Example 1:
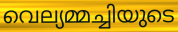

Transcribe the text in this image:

വെല്യമ്മച്ചിയുടെ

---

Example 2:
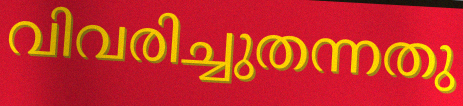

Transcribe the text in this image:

വിവരിച്ചുതന്നതു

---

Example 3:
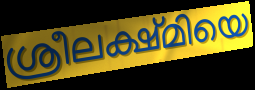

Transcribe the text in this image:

ശ്രീലക്ഷ്മിയെ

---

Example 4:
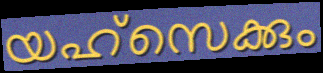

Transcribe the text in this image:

യഹ്സെക്കും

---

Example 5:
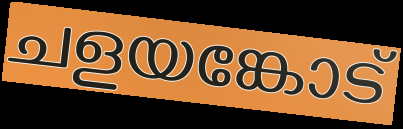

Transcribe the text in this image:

ചളയങ്കോട്